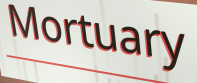
Mortuary